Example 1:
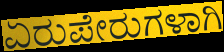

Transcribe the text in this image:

ಏರುಪೇರುಗಳಾಗಿ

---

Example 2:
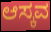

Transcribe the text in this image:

ಆಸ್ಕವ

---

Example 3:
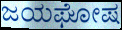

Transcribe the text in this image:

ಜಯಘೋಷ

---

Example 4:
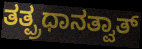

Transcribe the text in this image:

ತತ್ಪ್ರಧಾನತ್ವಾತ್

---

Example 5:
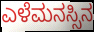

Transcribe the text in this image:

ಎಳೆಮನಸ್ಸಿನ